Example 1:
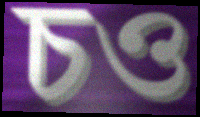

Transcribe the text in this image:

চও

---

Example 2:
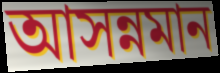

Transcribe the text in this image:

আসন্নমান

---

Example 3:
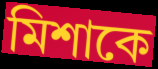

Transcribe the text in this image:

মিশাকে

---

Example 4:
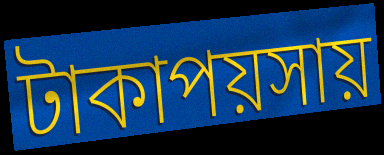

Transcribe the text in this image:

টাকাপয়সায়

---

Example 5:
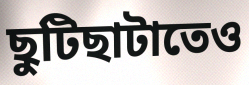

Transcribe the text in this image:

ছুটিছাটাতেও